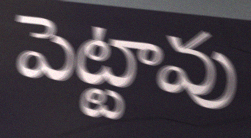
పెట్టావు